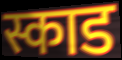
स्काड